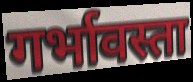
गर्भावस्ता